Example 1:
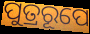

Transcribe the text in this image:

ପୁତ୍ରରୂପେ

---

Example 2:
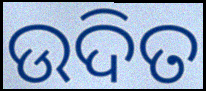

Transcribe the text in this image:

ଉଦିତ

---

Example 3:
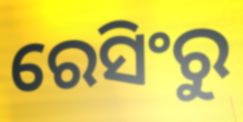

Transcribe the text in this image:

ରେସିଂରୁ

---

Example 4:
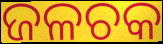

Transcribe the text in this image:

ଜଳଚକ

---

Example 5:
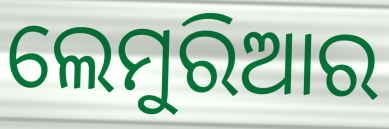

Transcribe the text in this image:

ଲେମୁରିଆର